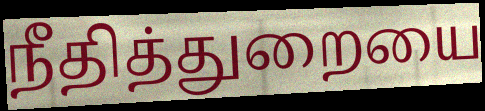
நீதித்துறையை